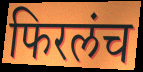
फिरलंच